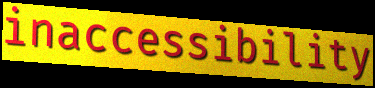
inaccessibility